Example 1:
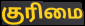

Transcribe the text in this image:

குரிமை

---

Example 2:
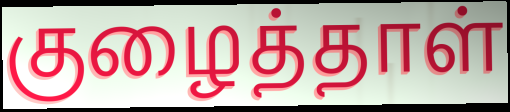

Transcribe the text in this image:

குழைத்தாள்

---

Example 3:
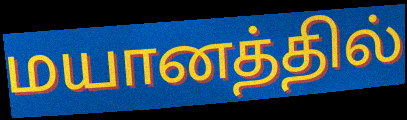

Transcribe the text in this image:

மயானத்தில்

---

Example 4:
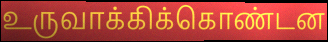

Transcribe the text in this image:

உருவாக்கிக்கொண்டன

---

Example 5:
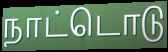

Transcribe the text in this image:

நாட்டொடு